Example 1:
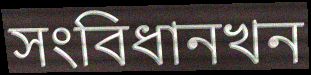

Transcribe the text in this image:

সংবিধানখন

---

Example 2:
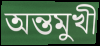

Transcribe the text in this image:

অন্তমুখী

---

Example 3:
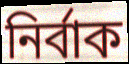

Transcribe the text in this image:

নিৰ্বাক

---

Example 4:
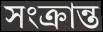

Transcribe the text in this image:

সংক্ৰান্ত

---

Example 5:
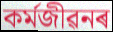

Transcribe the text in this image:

কৰ্মজীৱনৰ